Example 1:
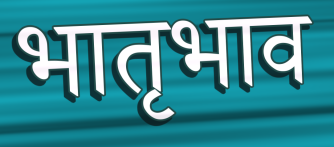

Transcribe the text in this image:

भातृभाव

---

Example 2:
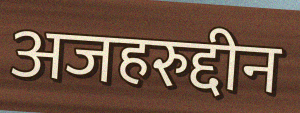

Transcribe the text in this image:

अजहरुद्दीन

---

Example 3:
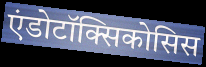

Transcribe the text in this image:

एंडोटॉक्सिकोसिस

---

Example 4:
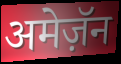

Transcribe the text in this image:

अमेज़ॅन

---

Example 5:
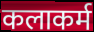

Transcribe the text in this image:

कलाकर्म